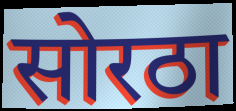
सोरठा